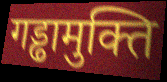
गड्ढामुक्ति